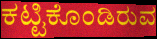
ಕಟ್ಟಿಕೊಂಡಿರುವ